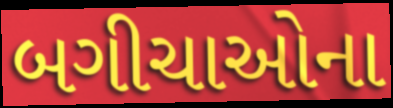
બગીચાઓના